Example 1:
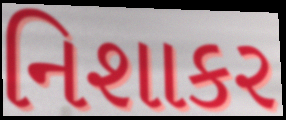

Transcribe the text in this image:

નિશાકર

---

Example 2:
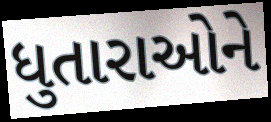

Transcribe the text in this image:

ધુતારાઓને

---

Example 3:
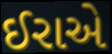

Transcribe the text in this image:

ઈરાએ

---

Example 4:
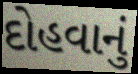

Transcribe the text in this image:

દોહવાનું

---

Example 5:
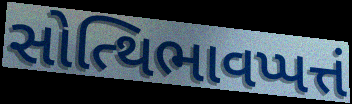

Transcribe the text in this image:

સોત્થિભાવપ્પત્તં